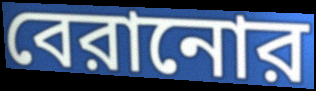
বেরানোর